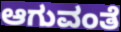
ಆಗುವಂತೆ